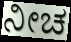
ನೀಚ